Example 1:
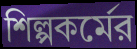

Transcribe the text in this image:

শিল্পকর্মের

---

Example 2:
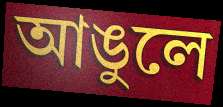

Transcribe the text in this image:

আঙুলে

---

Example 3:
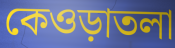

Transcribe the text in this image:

কেওড়াতলা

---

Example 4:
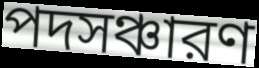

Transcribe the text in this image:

পদসঞ্চারণ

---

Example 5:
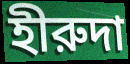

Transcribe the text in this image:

হীরুদা